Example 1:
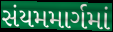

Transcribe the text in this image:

સંયમમાર્ગમાં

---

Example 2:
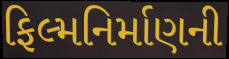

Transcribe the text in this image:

ફિલ્મનિર્માણની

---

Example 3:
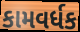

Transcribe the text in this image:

કામવર્ધક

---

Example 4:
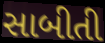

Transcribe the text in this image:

સાબીતી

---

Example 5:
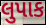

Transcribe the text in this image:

લુપાક